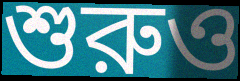
শুরুও